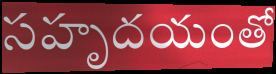
సహృదయంతో